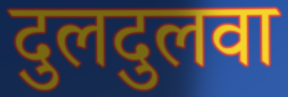
दुलदुलवा